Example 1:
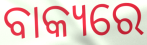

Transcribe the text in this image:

ବାକ୍ୟରେ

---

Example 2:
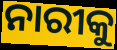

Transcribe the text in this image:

ନାରୀକୁ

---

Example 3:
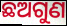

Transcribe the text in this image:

ଛଅଗୁଣ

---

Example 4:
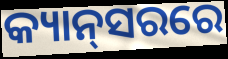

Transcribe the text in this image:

କ୍ୟାନ୍‌ସରରେ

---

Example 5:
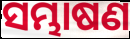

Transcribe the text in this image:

ସମ୍ଭାଷଣ